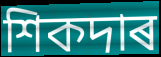
শিকদাৰ